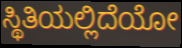
ಸ್ಥಿತಿಯಲ್ಲಿದೆಯೋ